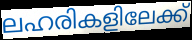
ലഹരികളിലേക്ക്